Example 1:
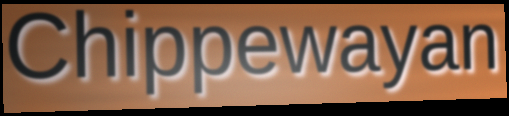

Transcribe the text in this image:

Chippewayan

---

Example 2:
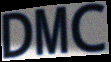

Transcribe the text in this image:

DMC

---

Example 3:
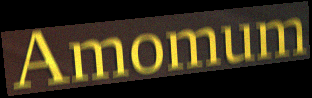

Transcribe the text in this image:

Amomum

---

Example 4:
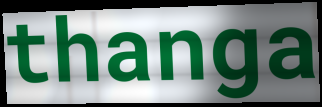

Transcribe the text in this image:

thanga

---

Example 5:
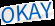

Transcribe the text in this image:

OKAY